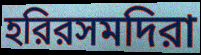
হরিরসমদিরা